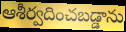
ఆశీర్వదించబడ్డాను